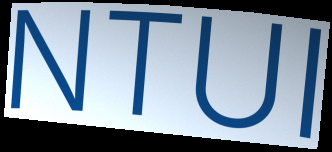
NTUI